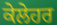
ਕੇਲੇਹਰ